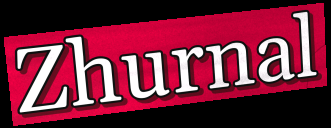
Zhurnal